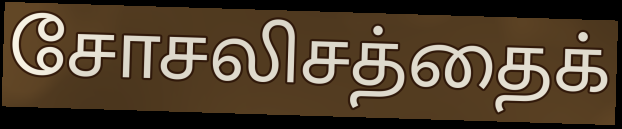
சோசலிசத்தைக்